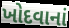
ખોદવાનાં